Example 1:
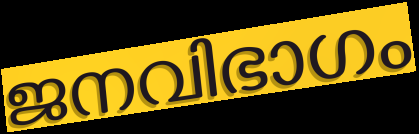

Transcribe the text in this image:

ജനവിഭാഗം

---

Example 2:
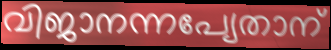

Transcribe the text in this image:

വിജാനന്നപ്യേതാന്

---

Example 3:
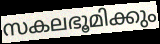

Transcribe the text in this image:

സകലഭൂമിക്കും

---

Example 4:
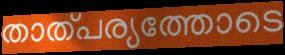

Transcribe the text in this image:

താത്പര്യത്തോടെ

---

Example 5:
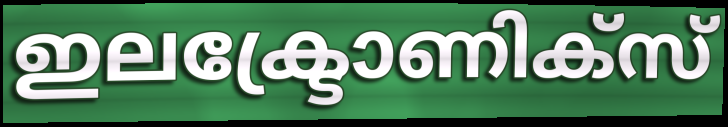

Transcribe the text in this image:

ഇലക്ട്രോണിക്സ്